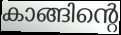
കാങ്ങിന്റെ